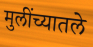
मुलींच्यातले